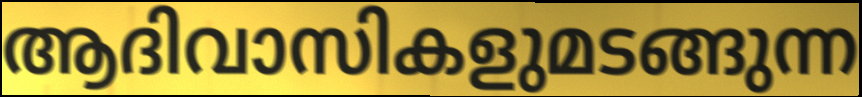
ആദിവാസികളുമടങ്ങുന്ന